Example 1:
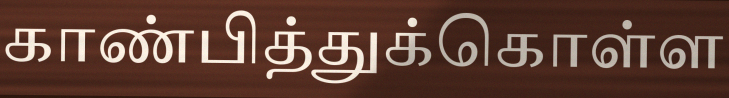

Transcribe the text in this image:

காண்பித்துக்கொள்ள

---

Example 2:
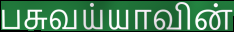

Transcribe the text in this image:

பசுவய்யாவின்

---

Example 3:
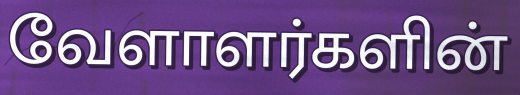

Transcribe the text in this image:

வேளாளர்களின்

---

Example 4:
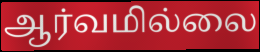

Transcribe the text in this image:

ஆர்வமில்லை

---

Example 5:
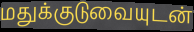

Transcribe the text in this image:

மதுக்குடுவையுடன்